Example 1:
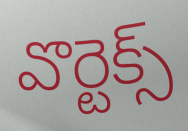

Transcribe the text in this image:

వొర్టెక్స్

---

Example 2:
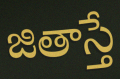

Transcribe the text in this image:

జితాస్తే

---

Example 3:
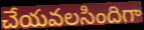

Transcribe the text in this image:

చేయవలసిందిగా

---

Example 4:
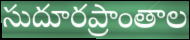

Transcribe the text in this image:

సుదూరప్రాంతాల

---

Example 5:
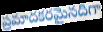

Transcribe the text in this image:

ప్రమాదకరమైనదిగా